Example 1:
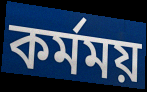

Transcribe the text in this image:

কর্মময়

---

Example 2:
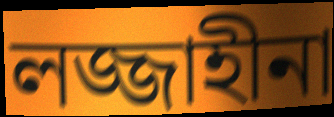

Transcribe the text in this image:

লজ্জাহীনা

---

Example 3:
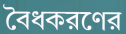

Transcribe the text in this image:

বৈধকরণের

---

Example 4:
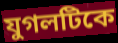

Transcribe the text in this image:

যুগলটিকে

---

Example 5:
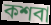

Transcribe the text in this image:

কশবা